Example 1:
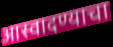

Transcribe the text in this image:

आस्वादण्याचा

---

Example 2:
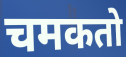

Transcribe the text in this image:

चमकतो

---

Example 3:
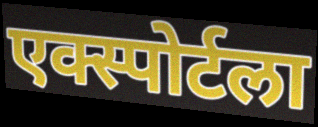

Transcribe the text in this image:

एक्स्पोर्टला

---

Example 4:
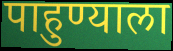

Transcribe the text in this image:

पाहुण्याला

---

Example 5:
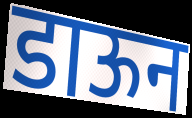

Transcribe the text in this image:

डाऊन